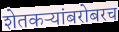
शेतकऱ्यांबरोबरच